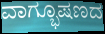
ವಾಗ್ಭೂಷಣದ